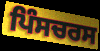
ਪਿੰਸਚਰਸ